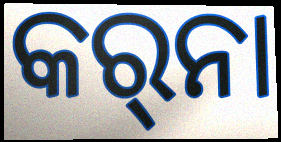
କର୍‌ନା